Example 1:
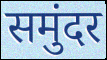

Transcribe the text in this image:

समुंदर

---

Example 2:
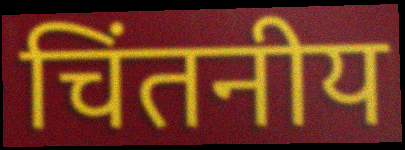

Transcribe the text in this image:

चिंतनीय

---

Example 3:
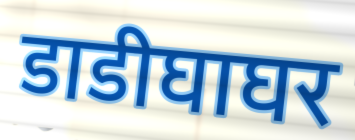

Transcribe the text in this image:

डाडीघाघर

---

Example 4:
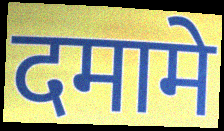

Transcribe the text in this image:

दमामे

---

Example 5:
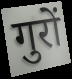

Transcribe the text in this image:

गुरों